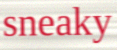
sneaky